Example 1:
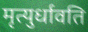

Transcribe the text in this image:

मृत्युर्धावति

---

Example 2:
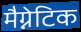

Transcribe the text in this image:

मैग्नेटिक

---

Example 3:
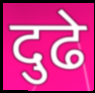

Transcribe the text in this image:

दुढे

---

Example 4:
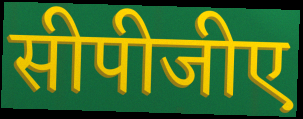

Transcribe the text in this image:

सीपीजीए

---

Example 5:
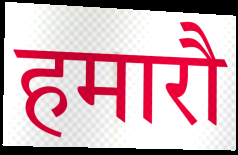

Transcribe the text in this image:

हमारौ